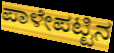
ಪಾಳೇಪಟ್ಟಿನ